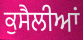
ਕੁਸੈਲੀਆਂ